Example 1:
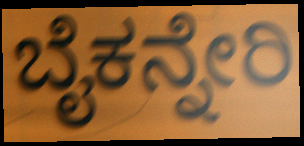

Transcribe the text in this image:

ಬೈಕನ್ನೇರಿ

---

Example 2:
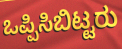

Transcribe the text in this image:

ಒಪ್ಪಿಸಿಬಿಟ್ಟರು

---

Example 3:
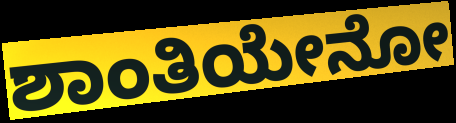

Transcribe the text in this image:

ಶಾಂತಿಯೇನೋ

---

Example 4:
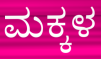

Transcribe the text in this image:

ಮಕ್ಕಳ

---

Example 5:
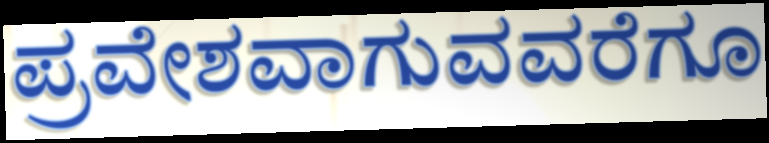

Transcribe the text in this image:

ಪ್ರವೇಶವಾಗುವವರೆಗೂ